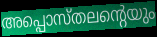
അപ്പൊസ്തലന്റെയും